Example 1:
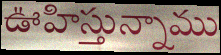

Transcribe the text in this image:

ఊహిస్తున్నాము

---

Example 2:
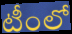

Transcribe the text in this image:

టీంలో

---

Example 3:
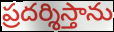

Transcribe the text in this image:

ప్రదర్శిస్తాను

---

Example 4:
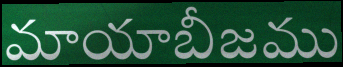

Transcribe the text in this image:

మాయాబీజము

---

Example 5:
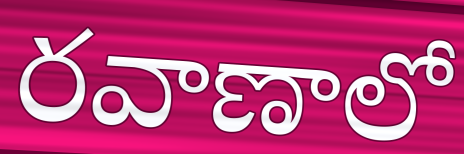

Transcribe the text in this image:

రవాణాలో